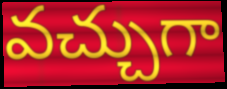
వచ్చుగా